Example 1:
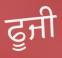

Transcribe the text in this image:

ਫੂਜੀ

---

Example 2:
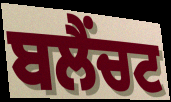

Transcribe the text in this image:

ਬਲੈਂਚਟ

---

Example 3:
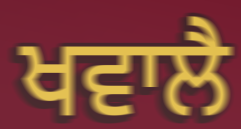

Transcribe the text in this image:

ਖਵਾਲੈ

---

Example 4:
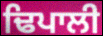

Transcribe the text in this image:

ਢਿਪਾਲੀ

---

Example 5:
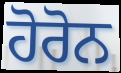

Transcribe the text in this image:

ਹੋਰੋਨ